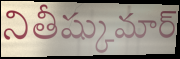
నితీష్కుమార్